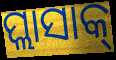
ପ୍ଲାସାକ୍